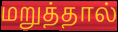
மறுத்தால்